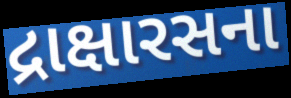
દ્રાક્ષારસના